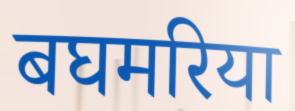
बघमरिया